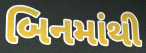
બિનમાંથી